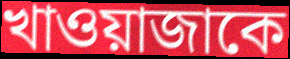
খাওয়াজাকে